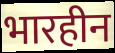
भारहीन